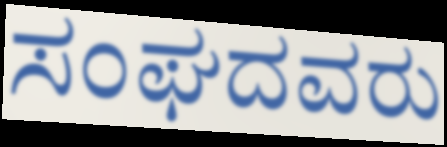
ಸಂಘದವರು